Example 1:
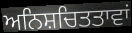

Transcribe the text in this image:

ਅਨਿਸ਼ਚਿਤਤਾਵਾਂ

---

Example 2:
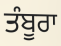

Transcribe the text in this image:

ਤੰਬੂਰਾ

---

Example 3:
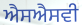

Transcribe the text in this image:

ਐਸਐਸਵੀ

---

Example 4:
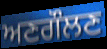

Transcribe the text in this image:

ਅਣਗੌਲਣ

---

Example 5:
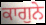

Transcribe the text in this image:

ਕਾਗੁਨੇ